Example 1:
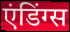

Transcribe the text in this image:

एंडिंग्स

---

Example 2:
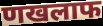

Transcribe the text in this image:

णखलाफ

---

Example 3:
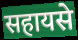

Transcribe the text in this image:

सहायसे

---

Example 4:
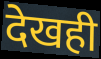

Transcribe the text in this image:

देखही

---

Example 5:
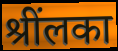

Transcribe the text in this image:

श्रींलका